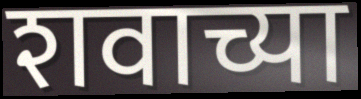
शवाच्या